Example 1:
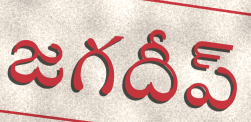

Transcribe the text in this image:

జగదీప్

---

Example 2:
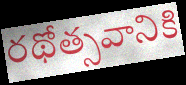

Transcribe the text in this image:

రథోత్సవానికి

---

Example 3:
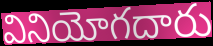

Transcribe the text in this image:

వినియోగదారు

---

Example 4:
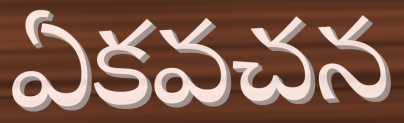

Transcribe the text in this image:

ఏకవచన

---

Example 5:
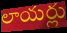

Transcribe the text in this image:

లాయర్లు